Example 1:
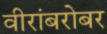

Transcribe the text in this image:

वीरांबरोबर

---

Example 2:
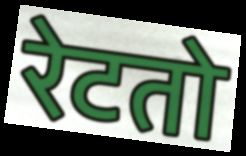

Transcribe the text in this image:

रेटतो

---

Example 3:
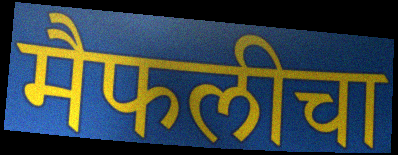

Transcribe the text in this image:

मैफलीचा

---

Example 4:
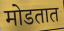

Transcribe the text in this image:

मोडतात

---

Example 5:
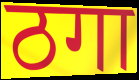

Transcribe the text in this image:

ठगा